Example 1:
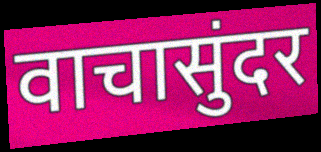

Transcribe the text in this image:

वाचासुंदर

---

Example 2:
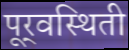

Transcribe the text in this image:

पूर्वस्थिती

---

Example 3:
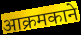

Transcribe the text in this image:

आक्रमकाने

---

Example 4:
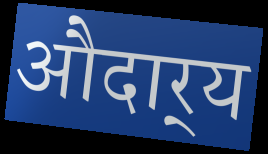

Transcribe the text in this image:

औदार्य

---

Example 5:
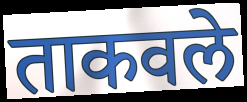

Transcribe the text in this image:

ताकवले